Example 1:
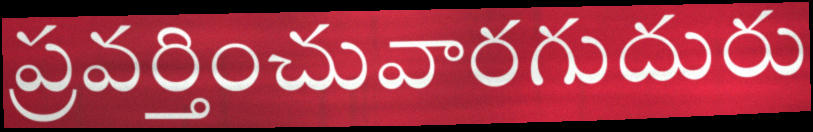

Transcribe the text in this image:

ప్రవర్తించువారగుదురు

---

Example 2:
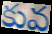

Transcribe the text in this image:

కువ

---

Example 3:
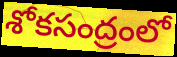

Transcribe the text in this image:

శోకసంద్రంలో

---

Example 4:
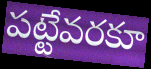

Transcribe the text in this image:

పట్టేవరకూ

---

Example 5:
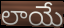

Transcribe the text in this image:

లాయే